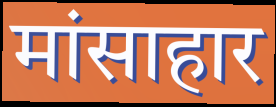
मांसाहार